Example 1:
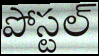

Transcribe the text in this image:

పోస్టల్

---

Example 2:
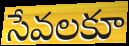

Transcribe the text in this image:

సేవలకూ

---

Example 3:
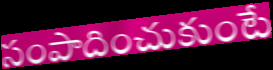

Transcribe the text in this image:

సంపాదించుకుంటే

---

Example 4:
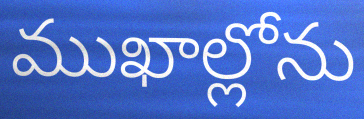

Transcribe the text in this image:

ముఖాల్లోను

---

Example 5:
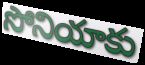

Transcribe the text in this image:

సోనియాకు